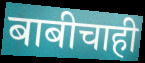
बाबीचाही